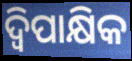
ଦ୍ୱିପାକ୍ଷିକ